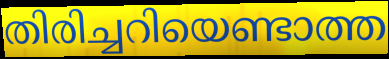
തിരിച്ചറിയെണ്ടാത്ത